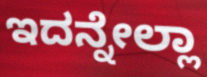
ಇದನ್ನೇಲ್ಲಾ